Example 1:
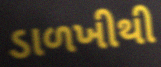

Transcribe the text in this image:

ડાળખીથી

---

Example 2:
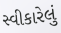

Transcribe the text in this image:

સ્વીકારેલું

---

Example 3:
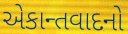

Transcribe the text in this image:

એકાન્તવાદનો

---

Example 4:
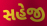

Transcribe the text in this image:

સહેજી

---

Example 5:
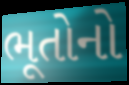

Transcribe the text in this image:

ભૂતોનો